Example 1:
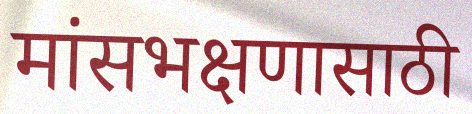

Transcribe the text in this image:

मांसभक्षणासाठी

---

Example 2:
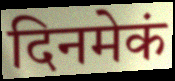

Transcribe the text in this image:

दिनमेकं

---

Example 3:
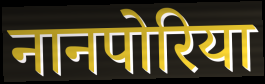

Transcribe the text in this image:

नानपोरिया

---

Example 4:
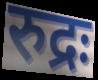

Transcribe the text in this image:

रुद्रः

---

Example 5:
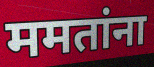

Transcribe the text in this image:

ममतांना